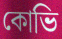
কোভি